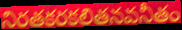
నిరతకరకలితనవనీతం